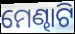
ମେଣ୍ଢାଟି